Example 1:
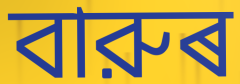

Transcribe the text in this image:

বাৰুৰ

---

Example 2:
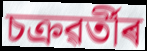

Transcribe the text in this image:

চক্ৰৱৰ্তীৰ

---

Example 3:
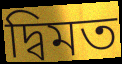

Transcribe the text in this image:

দ্বিমত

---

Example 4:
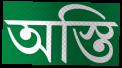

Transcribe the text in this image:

অস্তি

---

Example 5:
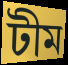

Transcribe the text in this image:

টীম